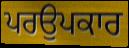
ਪਰਉਪਕਾਰ